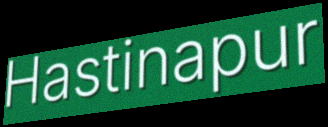
Hastinapur